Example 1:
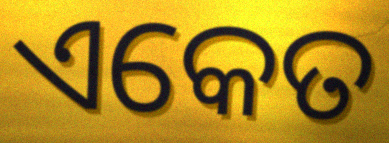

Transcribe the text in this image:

ଏକେତ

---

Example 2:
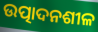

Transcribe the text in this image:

ଉତ୍ପାଦନଶୀଳ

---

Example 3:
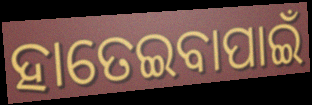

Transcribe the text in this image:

ହାତେଇବାପାଇଁ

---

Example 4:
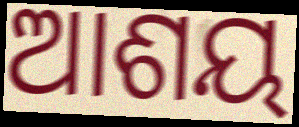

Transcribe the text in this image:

ଆଶୟ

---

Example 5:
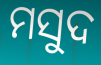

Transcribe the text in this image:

ମସୁଦ